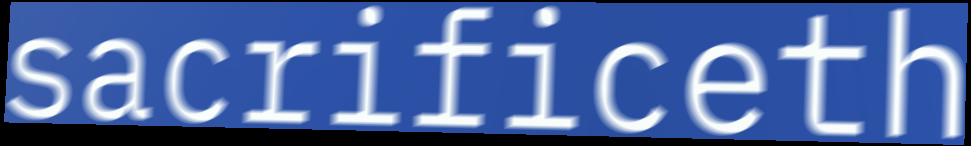
sacrificeth